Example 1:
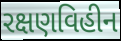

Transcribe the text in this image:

રક્ષણવિહીન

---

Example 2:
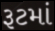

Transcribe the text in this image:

રૂટમાં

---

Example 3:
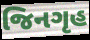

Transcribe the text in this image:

જિનગૃહ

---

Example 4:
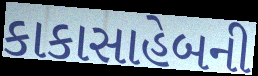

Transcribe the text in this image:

કાકાસાહેબની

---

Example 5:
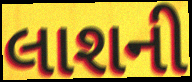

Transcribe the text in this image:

લાશની